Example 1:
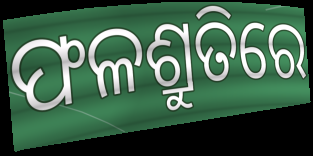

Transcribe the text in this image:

ଫଳଶ୍ରୁତିରେ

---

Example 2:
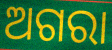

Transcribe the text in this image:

ଅଗରା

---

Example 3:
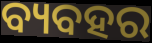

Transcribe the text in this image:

ବ୍ୟବହର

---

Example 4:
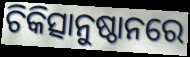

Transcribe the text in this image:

ଚିକିତ୍ସାନୁଷ୍ଠାନରେ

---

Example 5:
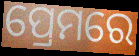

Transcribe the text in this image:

ପ୍ରେମରେ